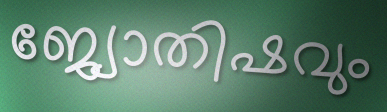
ജ്യോതിഷവും